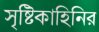
সৃষ্টিকাহিনির